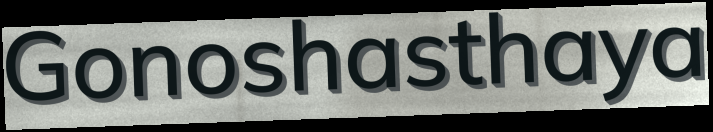
Gonoshasthaya